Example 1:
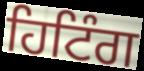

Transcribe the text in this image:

ਹਿਟਿੰਗ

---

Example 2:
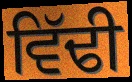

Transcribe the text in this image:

ਵਿੱਢੀ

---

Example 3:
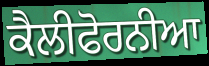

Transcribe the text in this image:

ਕੈਲੀਫੋਰਨੀਆ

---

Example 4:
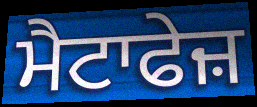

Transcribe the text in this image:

ਮੈਟਾਫੇਜ਼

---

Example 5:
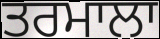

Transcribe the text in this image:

ਤਰਮਾਲਾ